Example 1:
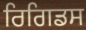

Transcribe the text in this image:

ਰਿਗਿਡਸ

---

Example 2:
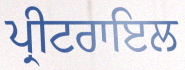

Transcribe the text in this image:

ਪ੍ਰੀਟਰਾਇਲ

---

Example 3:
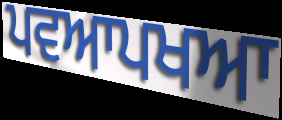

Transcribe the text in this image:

ਪਵਆਪਖਆ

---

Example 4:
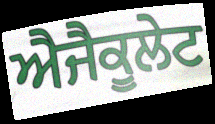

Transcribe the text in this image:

ਐਜੈਕੂਲੇਟ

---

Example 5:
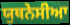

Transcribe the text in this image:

ਯੁਥਨੇਸੀਆ